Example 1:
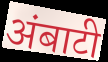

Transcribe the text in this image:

अंबाटी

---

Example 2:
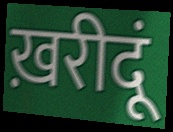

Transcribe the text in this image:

ख़रीदूं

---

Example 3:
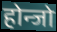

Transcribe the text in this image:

होन्जो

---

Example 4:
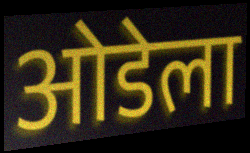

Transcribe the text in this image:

ओडेला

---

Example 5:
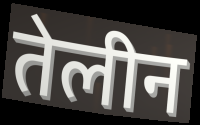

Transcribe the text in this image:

तेलीन